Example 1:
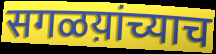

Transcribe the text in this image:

सगळय़ांच्याच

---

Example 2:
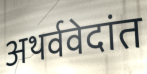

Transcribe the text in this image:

अथर्ववेदांत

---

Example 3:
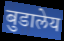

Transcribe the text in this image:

बुडालेय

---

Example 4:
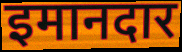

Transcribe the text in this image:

इमानदार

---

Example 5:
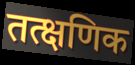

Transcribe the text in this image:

तत्क्षणिक